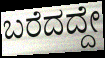
ಬರೆದದ್ದೇ